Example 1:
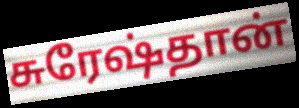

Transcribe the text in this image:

சுரேஷ்தான்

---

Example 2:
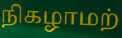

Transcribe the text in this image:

நிகழாமற்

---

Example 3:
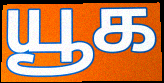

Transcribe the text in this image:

யூக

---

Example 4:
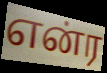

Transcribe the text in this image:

என்ர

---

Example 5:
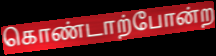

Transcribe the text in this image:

கொண்டாற்போன்ற